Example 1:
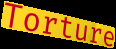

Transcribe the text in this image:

Torture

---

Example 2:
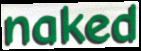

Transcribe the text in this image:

naked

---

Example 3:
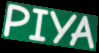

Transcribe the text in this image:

PIYA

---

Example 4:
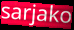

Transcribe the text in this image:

sarjako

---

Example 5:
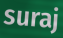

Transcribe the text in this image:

suraj